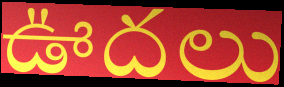
ఊదలు